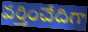
వర్తించేదిగా